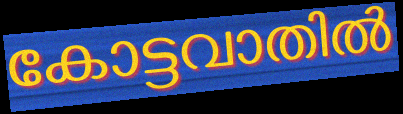
കോട്ടവാതിൽ